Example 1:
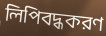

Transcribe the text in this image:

লিপিবদ্ধকরণ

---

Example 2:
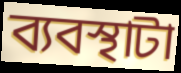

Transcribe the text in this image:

ব্যবস্থাটা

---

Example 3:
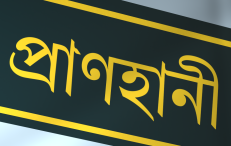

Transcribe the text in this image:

প্রাণহানী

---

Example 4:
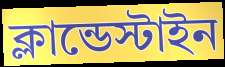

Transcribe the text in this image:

ক্লান্ডেস্টাইন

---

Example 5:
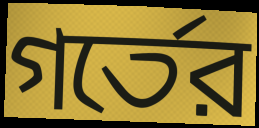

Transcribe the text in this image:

গর্তের